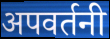
अपवर्तनी